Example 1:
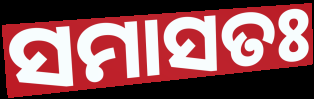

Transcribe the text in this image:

ସମାସତଃ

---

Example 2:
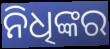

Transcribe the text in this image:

ନିଧିଙ୍କର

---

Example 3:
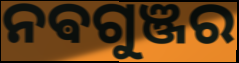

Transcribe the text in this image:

ନଵଗୁଞ୍ଜର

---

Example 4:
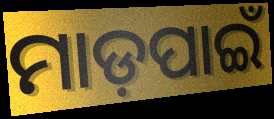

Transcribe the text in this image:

ମାଡ଼ପାଇଁ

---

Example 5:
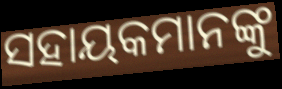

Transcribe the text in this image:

ସହାୟକମାନଙ୍କୁ